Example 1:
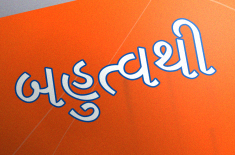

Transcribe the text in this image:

બહુત્વથી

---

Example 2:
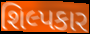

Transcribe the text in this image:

શિલ્પકાર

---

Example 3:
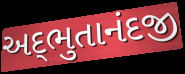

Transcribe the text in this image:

અદ્‌ભુતાનંદજી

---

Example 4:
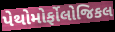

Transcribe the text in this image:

પેથોમોર્ફોલોજિકલ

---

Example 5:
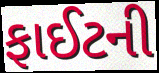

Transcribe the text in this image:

ફાઈટની